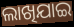
ଲାଖିଯାଇ